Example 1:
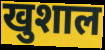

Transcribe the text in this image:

खुशाल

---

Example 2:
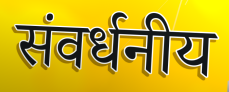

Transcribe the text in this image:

संवर्धनीय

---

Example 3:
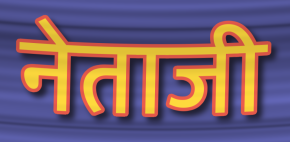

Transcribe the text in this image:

नेताजी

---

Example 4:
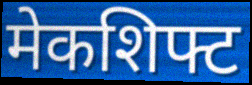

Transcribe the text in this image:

मेकशिफ्ट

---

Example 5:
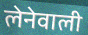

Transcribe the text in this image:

लेनेवाली